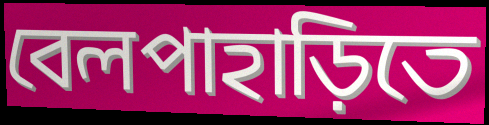
বেলপাহাড়িতে